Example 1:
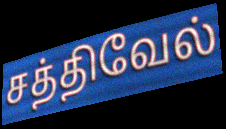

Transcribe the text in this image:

சத்திவேல்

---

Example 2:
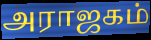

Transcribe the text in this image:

அராஜகம்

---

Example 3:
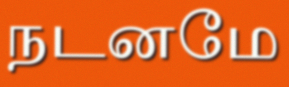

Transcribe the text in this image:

நடனமே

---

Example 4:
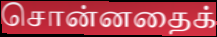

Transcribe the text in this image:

சொன்னதைக்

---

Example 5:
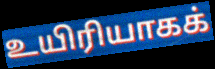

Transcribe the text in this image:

உயிரியாகக்